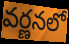
వర్ణనలో